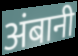
अंबानी